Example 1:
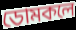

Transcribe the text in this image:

ডোমকলে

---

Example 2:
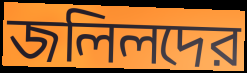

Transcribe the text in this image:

জলিলদের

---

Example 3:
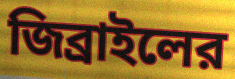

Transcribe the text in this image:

জিব্রাইলের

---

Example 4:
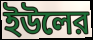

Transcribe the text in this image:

ইউলের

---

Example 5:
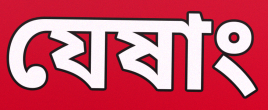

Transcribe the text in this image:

যেষাং